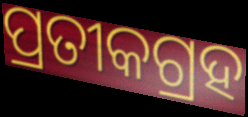
ପ୍ରତୀକଗ୍ରହ